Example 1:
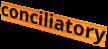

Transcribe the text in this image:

conciliatory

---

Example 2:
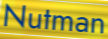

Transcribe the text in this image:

Nutman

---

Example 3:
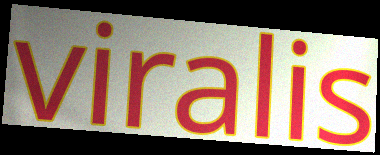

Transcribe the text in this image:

viralis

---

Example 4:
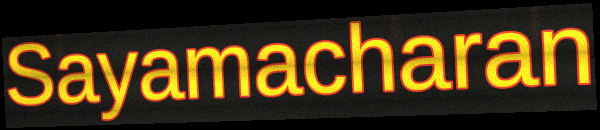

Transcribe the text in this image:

Sayamacharan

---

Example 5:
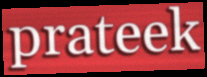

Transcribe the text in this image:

prateek